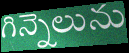
గిన్నెలును